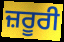
ਜ਼ਰੂਰੀ